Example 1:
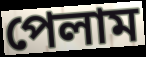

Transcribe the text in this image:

পেলাম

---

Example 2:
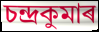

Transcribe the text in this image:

চন্দ্ৰকুমাৰ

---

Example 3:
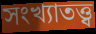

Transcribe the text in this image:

সংখ্যাতত্ত্ব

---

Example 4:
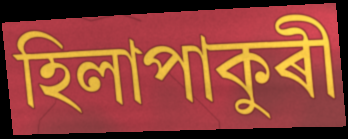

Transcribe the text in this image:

হিলাপাকুৰী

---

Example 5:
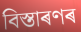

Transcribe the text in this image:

বিস্তাৰণৰ